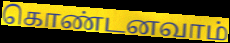
கொண்டனவாம்